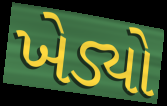
ખેડ્યો